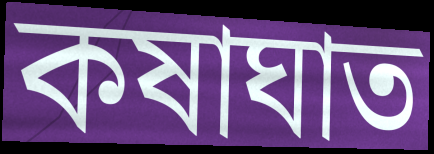
কষাঘাত